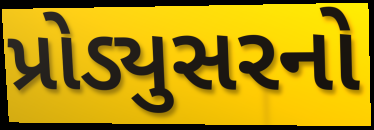
પ્રોડ્યુસરનો